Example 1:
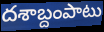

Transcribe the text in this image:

దశాబ్దంపాటు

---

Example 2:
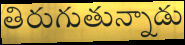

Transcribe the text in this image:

తిరుగుతున్నాడు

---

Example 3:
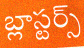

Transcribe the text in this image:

బ్లాస్టర్స్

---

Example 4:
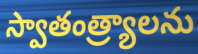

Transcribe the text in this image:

స్వాతంత్ర్యాలను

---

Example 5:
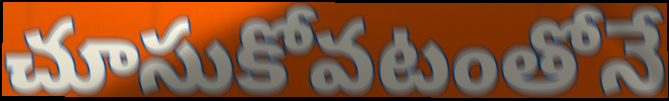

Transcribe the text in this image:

చూసుకోవటంతోనే